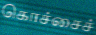
கொச்சைச்